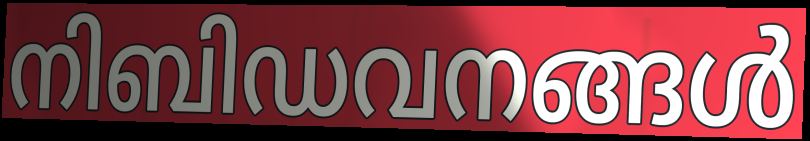
നിബിഡവനങ്ങൾ